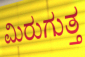
ಮಿರುಗುತ್ತ